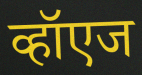
व्हॉएज